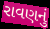
રાવણનું